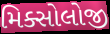
મિક્સોલોજી